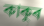
কাকুৰ